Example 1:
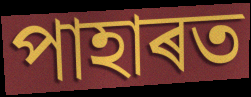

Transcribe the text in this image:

পাহাৰত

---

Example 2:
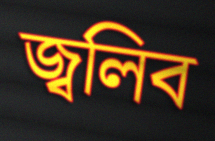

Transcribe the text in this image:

জ্বলিব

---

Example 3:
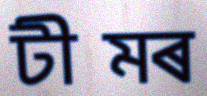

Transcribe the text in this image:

টীমৰ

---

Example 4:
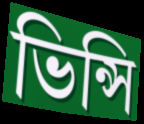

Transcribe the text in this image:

ভিন্সি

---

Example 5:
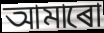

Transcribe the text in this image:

আমাৰো